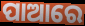
ପାଆରେ